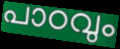
പാഠവും